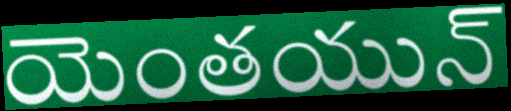
యెంతయున్